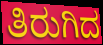
ತಿರುಗಿದ